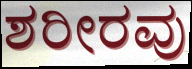
ಶರೀರವು